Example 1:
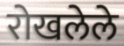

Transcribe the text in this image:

रोखलेले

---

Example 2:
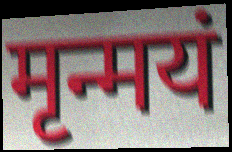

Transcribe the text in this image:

मृन्मयं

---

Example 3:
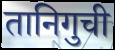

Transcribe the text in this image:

तानिगुची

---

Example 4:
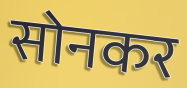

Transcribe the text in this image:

सोनकर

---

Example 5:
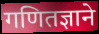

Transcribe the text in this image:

गणितज्ञाने